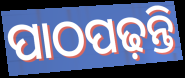
ପାଠପଢ଼ନ୍ତି